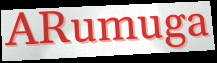
ARumuga